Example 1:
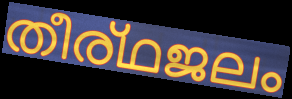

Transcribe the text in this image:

തീര്ഥജലം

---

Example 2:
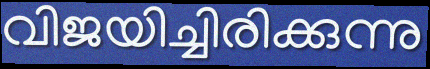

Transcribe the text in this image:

വിജയിച്ചിരിക്കുന്നു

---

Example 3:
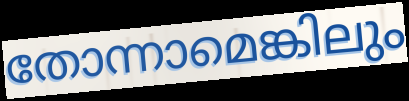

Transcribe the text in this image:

തോന്നാമെങ്കിലും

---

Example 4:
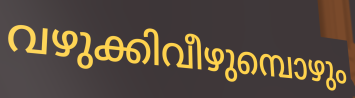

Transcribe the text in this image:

വഴുക്കിവീഴുമ്പൊഴും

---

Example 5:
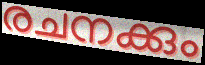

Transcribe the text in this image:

രചനക്കും